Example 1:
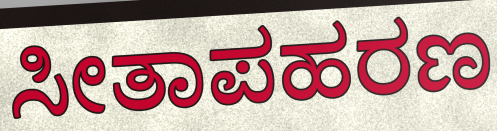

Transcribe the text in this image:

ಸೀತಾಪಹರಣ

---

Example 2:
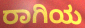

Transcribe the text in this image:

ರಾಗಿಯ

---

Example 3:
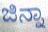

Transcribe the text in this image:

ಜಿನ್ನಾ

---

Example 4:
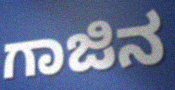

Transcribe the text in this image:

ಗಾಜಿನ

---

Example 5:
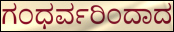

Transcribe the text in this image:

ಗಂಧರ್ವರಿಂದಾದ